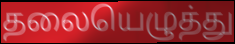
தலையெழுத்து